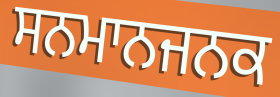
ਸਨਮਾਨਜਨਕ